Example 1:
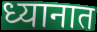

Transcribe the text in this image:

ध्यानात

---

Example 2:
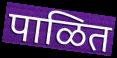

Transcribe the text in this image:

पाळित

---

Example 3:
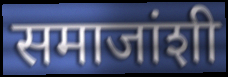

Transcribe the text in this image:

समाजांशी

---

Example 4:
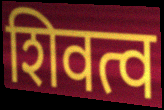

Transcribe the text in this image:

शिवत्व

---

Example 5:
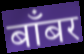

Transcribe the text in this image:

बाँबर